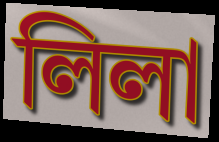
লিলা